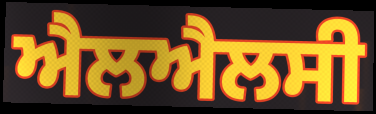
ਐਲਐਲਸੀ